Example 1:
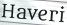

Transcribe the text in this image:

Haveri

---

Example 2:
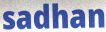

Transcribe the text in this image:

sadhan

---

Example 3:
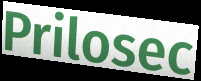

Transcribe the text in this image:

Prilosec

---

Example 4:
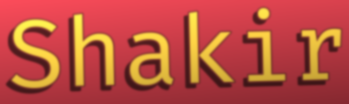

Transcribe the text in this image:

Shakir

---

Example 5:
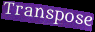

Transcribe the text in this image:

Transpose